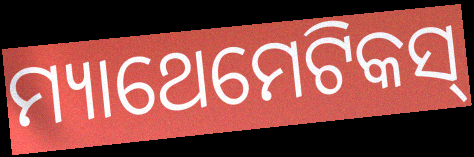
ମ୍ୟାଥେମେଟିକସ୍